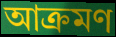
আক্ৰমণ